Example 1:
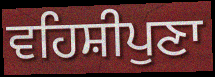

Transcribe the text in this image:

ਵਹਿਸ਼ੀਪੁਣਾ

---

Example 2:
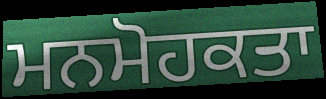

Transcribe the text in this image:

ਮਨਮੋਹਕਤਾ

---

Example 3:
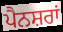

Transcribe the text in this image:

ਪੈਨਸ਼ਰਾਂ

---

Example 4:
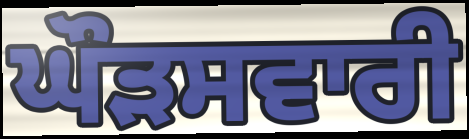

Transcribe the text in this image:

ਘੌੜਸਵਾਰੀ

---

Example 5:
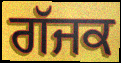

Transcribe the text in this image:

ਗੱਜਕ